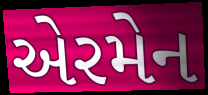
એરમેન